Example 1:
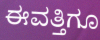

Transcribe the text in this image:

ಈವತ್ತಿಗೂ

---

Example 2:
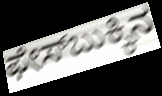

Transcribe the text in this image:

ಫೇಸ್‌ಬುಕ್ಕಿನ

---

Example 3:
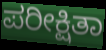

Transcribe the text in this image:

ಪರೀಕ್ಷಿತಾ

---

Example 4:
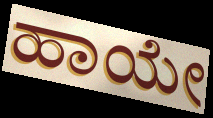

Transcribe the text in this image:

ಹಾಯೇ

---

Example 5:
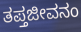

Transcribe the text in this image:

ತಪ್ತಜೀವನಂ